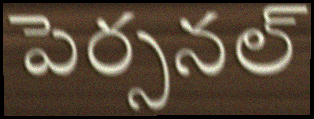
పెర్సనల్